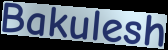
Bakulesh